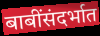
बाबींसंदर्भात